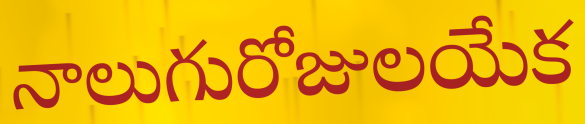
నాలుగురోజులయేక